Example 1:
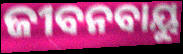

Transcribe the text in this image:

ଜୀବନବାୟୁ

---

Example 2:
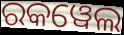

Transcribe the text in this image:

ରକୱେଲ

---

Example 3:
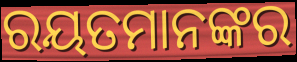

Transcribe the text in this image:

ରୟତମାନଙ୍କର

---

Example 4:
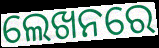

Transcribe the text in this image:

ଲେଖନରେ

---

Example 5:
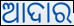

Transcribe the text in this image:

ଆଦାର